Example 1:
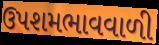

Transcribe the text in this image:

ઉપશમભાવવાળી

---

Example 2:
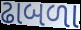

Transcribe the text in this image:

ઢાબળા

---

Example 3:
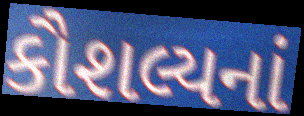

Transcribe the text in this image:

કૌશલ્યનાં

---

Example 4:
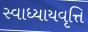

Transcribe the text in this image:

સ્વાધ્યાયવૃત્તિ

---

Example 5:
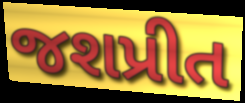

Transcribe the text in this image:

જશપ્રીત